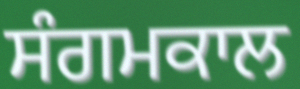
ਸੰਗਮਕਾਲ